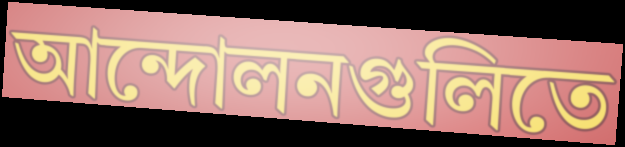
আন্দোলনগুলিতে